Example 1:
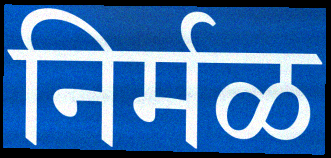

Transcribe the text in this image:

निर्मळ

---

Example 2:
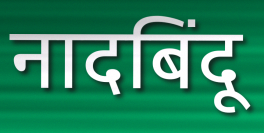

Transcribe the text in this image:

नादबिंदू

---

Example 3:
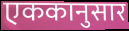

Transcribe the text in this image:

एककानुसार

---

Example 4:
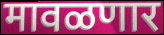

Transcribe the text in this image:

मावळणार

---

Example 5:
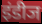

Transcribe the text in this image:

इंडीज